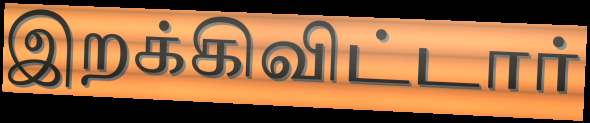
இறக்கிவிட்டார்